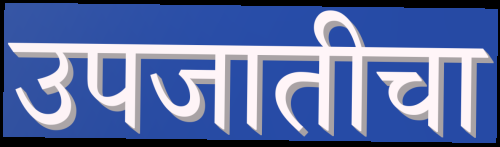
उपजातीचा